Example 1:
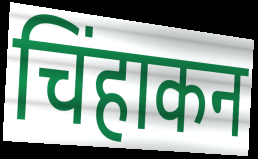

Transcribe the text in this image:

चिंहाकन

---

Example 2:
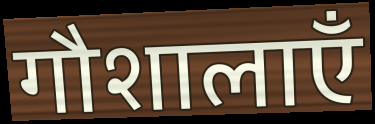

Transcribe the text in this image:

गौशालाएँ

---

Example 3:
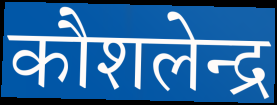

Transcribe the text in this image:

कौशलेन्द्र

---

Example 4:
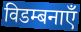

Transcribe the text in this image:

विडम्बनाएँ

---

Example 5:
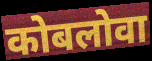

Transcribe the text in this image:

कोबलोवा